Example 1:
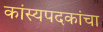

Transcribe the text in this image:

कांस्यपदकांचा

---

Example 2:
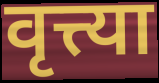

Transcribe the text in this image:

वृत्त्या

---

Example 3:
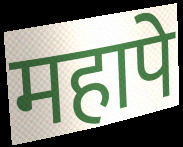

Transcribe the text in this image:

महापे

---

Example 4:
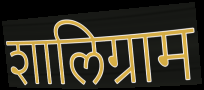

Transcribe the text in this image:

शालिग्राम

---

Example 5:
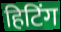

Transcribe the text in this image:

हिटिंग